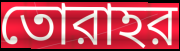
তোরাহর